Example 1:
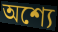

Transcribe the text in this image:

অশ্যে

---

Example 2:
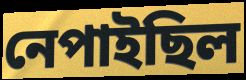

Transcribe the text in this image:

নেপাইছিল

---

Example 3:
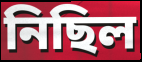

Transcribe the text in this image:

নিছিল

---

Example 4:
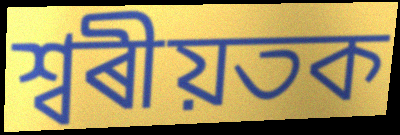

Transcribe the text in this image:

শ্বৰীয়তক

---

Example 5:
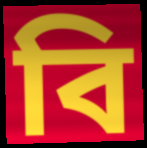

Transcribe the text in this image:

বি